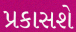
પ્રકાસશે